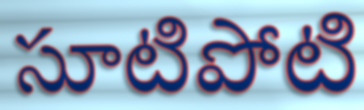
సూటిపోటి